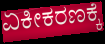
ಏಕೀಕರಣಕ್ಕೆ